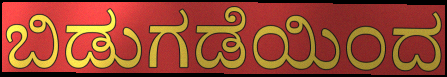
ಬಿಡುಗಡೆಯಿಂದ